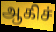
ஆகிச்